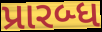
પ્રારબ્ધ